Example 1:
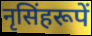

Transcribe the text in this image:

नृसिंहरूपें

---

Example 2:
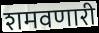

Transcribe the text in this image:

शमवणारी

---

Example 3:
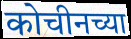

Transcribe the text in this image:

कोचीनच्या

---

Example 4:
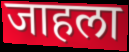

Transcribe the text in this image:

जाहला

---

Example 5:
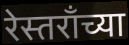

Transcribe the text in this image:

रेस्तराँच्या